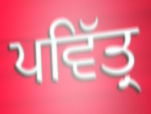
ਪਵਿੱਤ੍ਰ